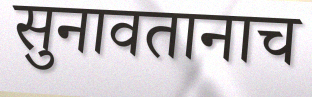
सुनावतानाच